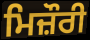
ਮਿਜ਼ੌਰੀ